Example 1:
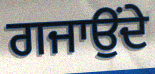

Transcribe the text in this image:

ਗਜਾਉਂਦੇ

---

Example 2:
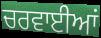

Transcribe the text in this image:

ਚਰਵਾਈਆਂ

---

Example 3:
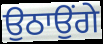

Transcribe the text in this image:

ਉਠਾਉਂਗੇ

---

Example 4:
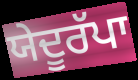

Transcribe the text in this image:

ਯੇਦੂਰੱਪਾ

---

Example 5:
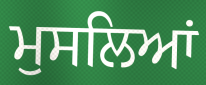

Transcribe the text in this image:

ਮੁਸਲਿਆਂ